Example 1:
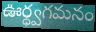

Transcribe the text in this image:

ఊర్ధ్వగమనం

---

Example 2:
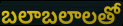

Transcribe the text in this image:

బలాబలాలతో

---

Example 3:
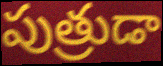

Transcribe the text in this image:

పుత్రుడా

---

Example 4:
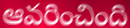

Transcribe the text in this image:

ఆవరించింది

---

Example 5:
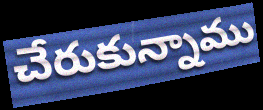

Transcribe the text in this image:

చేరుకున్నాము